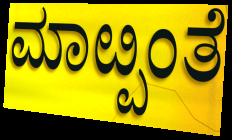
ಮಾೞ್ಪಂತೆ